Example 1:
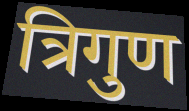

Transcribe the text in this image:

त्रिगुण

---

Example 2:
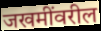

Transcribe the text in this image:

जखमींवरील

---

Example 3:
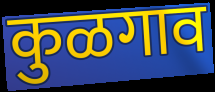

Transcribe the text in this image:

कुळगाव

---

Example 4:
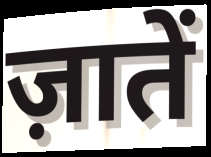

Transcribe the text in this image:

ज़ातें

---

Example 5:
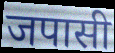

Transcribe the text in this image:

जपासी